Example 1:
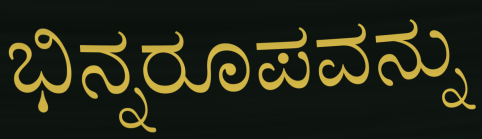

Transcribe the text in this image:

ಭಿನ್ನರೂಪವನ್ನು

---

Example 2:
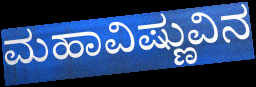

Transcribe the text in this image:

ಮಹಾವಿಷ್ಣುವಿನ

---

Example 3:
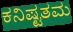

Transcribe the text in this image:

ಕನಿಷ್ಟತಮ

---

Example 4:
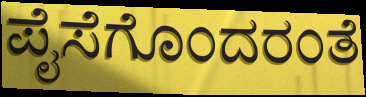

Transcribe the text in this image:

ಪೈಸೆಗೊಂದರಂತೆ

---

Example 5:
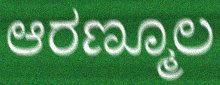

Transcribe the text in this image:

ಆರಣ್ಮೂಲ